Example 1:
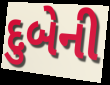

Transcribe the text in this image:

દુબેની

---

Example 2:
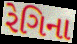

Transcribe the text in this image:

રેગિના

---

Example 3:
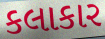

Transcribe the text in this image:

કલાકાર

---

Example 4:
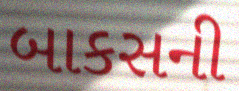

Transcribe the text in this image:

બાકસની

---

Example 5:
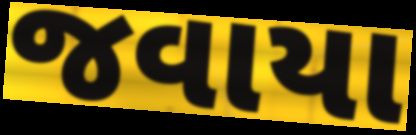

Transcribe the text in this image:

જવાયા